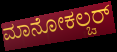
ಮಾನೋಕಲ್ಚರ್